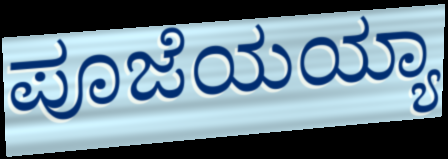
ಪೂಜೆಯಯ್ಯಾ